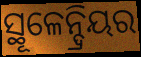
ସ୍ଥୂଳେନ୍ଦ୍ରିୟର